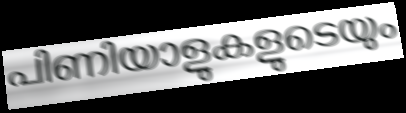
പിണിയാളുകളുടെയും